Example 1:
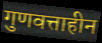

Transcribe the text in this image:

गुणवत्ताहीन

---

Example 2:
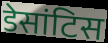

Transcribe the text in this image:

डेसांटिस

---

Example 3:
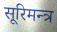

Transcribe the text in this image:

सूरिमन्त्र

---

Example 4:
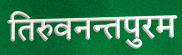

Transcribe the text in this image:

तिरुवनन्तपुरम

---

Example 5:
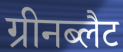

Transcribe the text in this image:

ग्रीनब्लैट